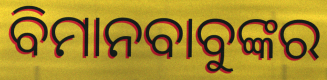
ବିମାନବାବୁଙ୍କର